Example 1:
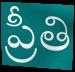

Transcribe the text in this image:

ప్రీతి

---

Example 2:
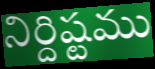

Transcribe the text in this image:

నిర్దిష్టము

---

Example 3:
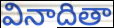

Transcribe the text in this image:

వినాదితా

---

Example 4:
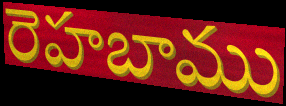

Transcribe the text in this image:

రెహబాము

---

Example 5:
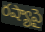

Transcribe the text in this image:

రష్యాపై